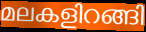
മലകളിറങ്ങി